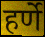
हर्णे